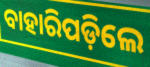
ବାହାରିପଡ଼ିଲେ